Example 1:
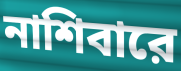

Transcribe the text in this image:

নাশিবারে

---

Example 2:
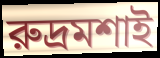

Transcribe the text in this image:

রুদ্রমশাই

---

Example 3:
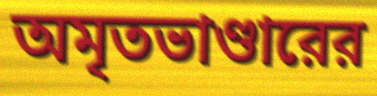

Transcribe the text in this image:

অমৃতভাণ্ডারের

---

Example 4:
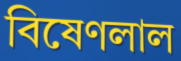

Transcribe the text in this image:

বিষেণলাল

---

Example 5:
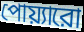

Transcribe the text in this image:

পোয়্যারো